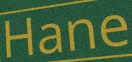
Hane